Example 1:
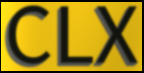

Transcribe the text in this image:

CLX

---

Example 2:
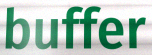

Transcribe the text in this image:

buffer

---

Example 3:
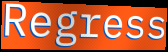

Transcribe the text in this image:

Regress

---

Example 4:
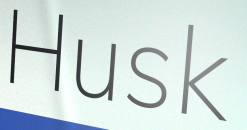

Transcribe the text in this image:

Husk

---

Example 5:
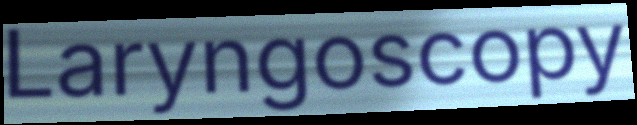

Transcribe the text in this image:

Laryngoscopy